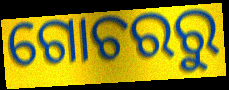
ଗୋଚରରୁ